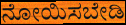
ನೋಯಿಸಬೇಡಿ